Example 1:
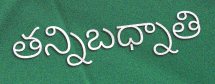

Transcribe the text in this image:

తన్నిబధ్నాతి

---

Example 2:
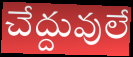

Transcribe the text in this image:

చేద్దువులే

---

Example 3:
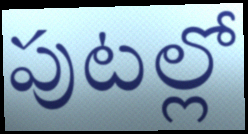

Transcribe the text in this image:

పుటల్లో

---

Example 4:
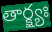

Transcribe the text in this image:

తార్క్ష్యః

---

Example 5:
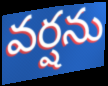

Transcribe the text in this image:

వర్షను